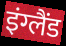
इंग्‍लैंड